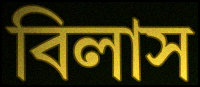
বিলাস